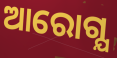
ଆରୋଗ୍ଯ